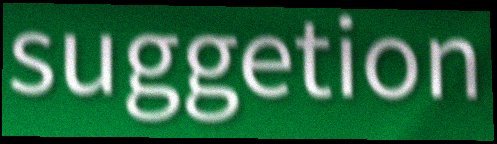
suggetion